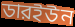
ডারইউন